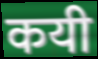
कयी